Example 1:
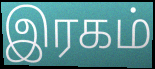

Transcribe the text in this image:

இரகம்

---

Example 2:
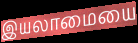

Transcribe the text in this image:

இயலாமையை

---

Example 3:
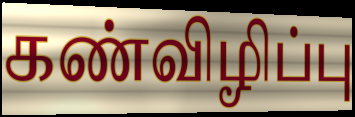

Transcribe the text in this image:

கண்விழிப்பு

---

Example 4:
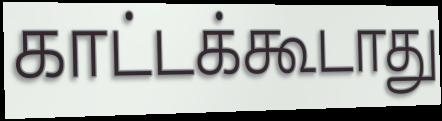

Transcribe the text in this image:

காட்டக்கூடாது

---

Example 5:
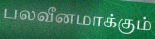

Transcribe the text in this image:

பலவீனமாக்கும்